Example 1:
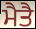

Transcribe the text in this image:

ਮੈਤੈ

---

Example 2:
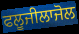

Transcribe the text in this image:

ਫਲੂਜੀਲਾਜੋਲ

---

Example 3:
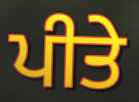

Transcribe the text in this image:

ਪੀਤੇ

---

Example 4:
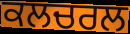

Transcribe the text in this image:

ਕਲਚਰਲ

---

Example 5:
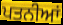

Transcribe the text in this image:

ਪਤਨੀਆਂ